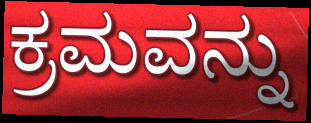
ಕ್ರಮವನ್ನು